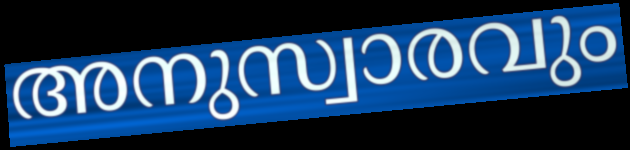
അനുസ്വാരവും